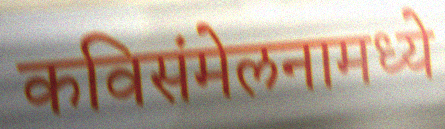
कविसंमेलनामध्ये